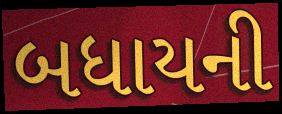
બધાયની